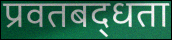
प्रवतबद्धता